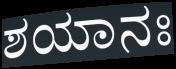
ಶಯಾನಃ